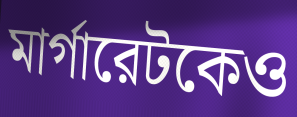
মার্গারেটকেও